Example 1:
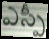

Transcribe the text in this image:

ఎస్పీ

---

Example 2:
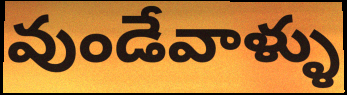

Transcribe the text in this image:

వుండేవాళ్ళు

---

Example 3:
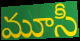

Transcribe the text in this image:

మూసీ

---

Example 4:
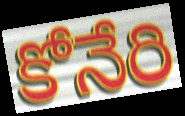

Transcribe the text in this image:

కోనేరి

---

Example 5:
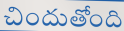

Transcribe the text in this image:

చిందుతోంది